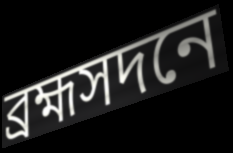
ব্রহ্মসদনে